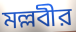
মল্লবীর